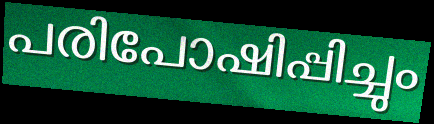
പരിപോഷിപ്പിച്ചും